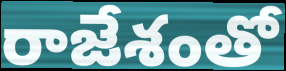
రాజేశంతో